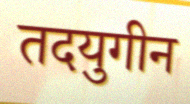
तदयुगीन